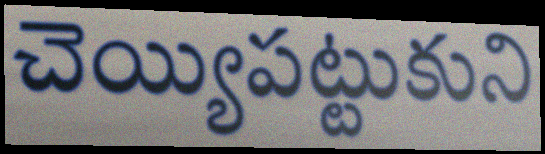
చెయ్యిపట్టుకుని